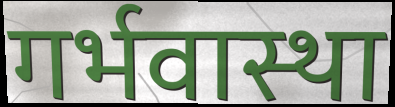
गर्भवास्था